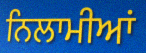
ਨਿਲਾਮੀਆਂ